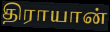
திராயான்